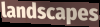
landscapes